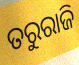
ତରୁରାଜି